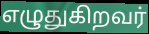
எழுதுகிறவர்